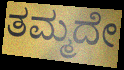
ತಮ್ಮದೇ